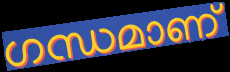
ഗന്ധമാണ്